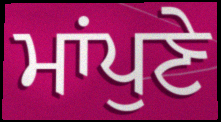
ਮਾਂਪੁਣੇ